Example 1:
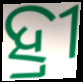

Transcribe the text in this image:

ହ୍ରୀ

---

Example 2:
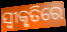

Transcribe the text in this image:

ସ୍ବୀକୃତିରେ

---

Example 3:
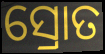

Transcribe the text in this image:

ସ୍ରୋତ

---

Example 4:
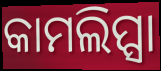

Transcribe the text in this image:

କାମଲିପ୍ସା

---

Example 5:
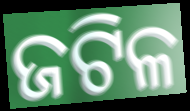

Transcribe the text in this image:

ଜଟିଳ